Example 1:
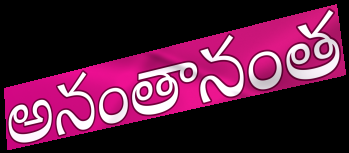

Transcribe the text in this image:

అనంతానంత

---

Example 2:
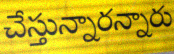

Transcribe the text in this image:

చేస్తున్నారన్నారు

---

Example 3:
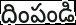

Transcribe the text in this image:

దింపండి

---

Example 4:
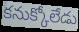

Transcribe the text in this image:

కనుక్కోలేడు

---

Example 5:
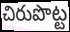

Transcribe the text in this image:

చిరుపొట్ట